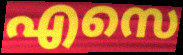
എസെ